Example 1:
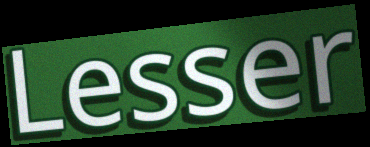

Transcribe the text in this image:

Lesser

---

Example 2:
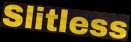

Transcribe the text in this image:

Slitless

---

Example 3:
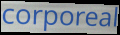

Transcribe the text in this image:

corporeal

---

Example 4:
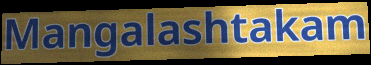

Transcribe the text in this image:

Mangalashtakam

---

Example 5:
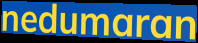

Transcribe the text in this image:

nedumaran